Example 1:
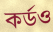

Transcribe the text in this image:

কর্ডও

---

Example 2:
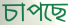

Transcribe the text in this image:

চাপছে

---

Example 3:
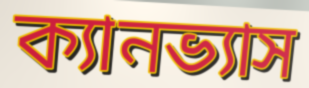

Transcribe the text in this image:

ক্যানভ্যাস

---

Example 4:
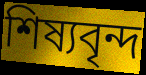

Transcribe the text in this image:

শিষ্যবৃন্দ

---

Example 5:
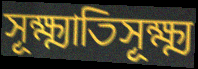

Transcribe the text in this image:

সূক্ষ্মাতিসূক্ষ্ম